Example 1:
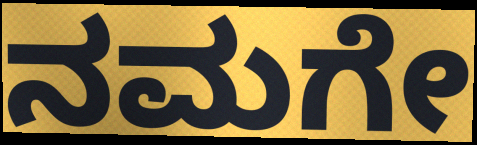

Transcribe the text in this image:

ನಮಗೇ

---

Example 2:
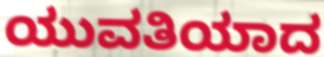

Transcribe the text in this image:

ಯುವತಿಯಾದ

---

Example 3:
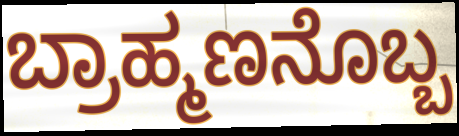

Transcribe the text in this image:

ಬ್ರಾಹ್ಮಣನೊಬ್ಬ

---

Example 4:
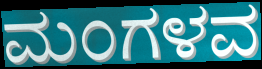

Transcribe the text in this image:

ಮಂಗಳವ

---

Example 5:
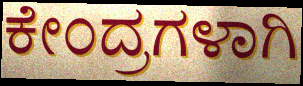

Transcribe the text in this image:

ಕೇಂದ್ರಗಳಾಗಿ